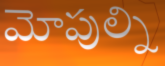
మోపుల్ని